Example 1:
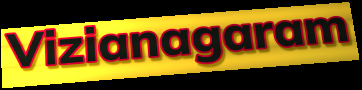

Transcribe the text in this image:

Vizianagaram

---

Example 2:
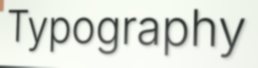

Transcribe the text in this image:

Typography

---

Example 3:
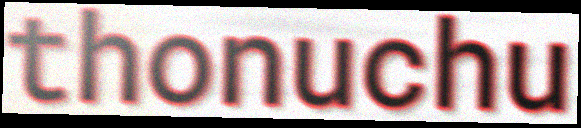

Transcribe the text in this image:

thonuchu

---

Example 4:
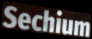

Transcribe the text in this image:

Sechium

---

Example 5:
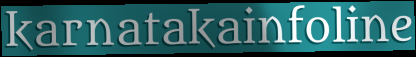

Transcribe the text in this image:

karnatakainfoline